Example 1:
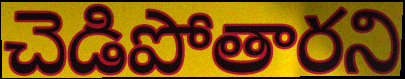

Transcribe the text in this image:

చెడిపోతారని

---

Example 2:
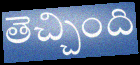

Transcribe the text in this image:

తెచ్చింది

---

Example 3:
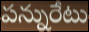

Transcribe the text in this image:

పన్నురేటు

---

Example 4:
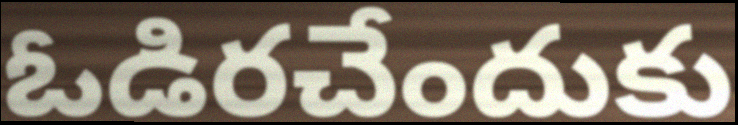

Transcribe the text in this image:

ఓడిరచేందుకు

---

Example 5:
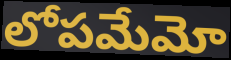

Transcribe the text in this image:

లోపమేమో